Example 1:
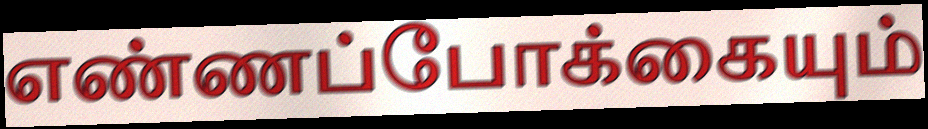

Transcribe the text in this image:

எண்ணப்போக்கையும்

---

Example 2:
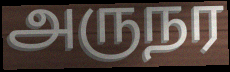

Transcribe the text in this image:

அருநர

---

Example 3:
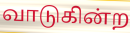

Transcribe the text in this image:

வாடுகின்ற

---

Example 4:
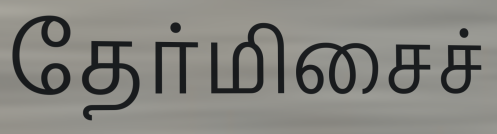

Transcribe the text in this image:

தேர்மிசைச்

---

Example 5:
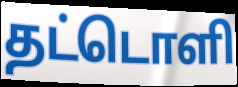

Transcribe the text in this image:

தட்டொளி